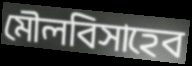
মৌলবিসাহেব